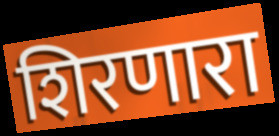
शिरणारा